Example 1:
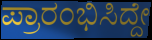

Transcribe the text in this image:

ಪ್ರಾರಂಭಿಸಿದ್ದೇ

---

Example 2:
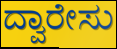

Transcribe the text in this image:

ದ್ವಾರೇಸು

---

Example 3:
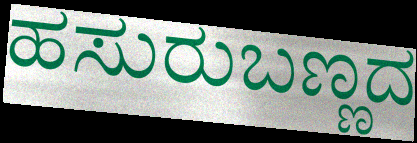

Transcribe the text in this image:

ಹಸುರುಬಣ್ಣದ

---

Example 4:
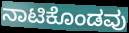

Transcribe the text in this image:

ನಾಟಿಕೊಂಡವು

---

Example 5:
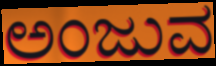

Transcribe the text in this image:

ಅಂಜುವ